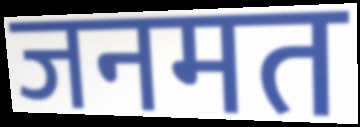
जनमत